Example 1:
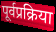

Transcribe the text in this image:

पूर्वप्रक्रिया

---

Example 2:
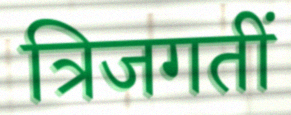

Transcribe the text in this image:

त्रिजगतीं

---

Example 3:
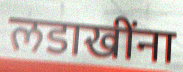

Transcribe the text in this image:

लडाखींना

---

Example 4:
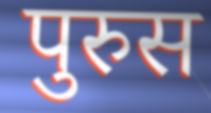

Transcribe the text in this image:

पुरुस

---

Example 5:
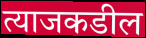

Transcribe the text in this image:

त्याजकडील